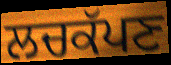
ਲਚਕੱਪਣ